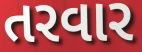
તરવાર